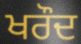
ਖਰੌਦ